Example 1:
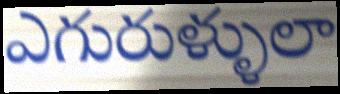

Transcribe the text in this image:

ఎగురుళ్ళులా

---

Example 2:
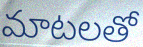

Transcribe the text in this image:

మాటలతో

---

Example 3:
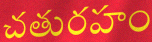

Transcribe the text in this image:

చతురహం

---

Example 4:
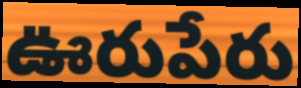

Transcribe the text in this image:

ఊరుపేరు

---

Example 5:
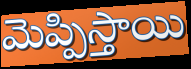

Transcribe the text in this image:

మెప్పిస్తాయి